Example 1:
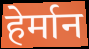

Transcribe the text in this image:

हेर्मान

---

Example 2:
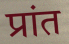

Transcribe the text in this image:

प्रांत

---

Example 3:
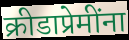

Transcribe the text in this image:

क्रीडाप्रेमींना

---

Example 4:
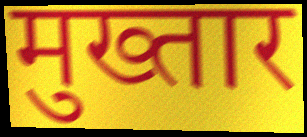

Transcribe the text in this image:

मुख्तार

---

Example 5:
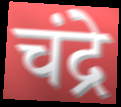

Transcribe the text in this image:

चंद्रे